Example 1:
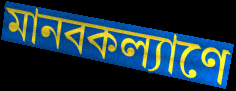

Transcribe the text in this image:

মানবকল্যাণে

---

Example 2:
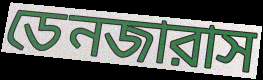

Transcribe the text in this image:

ডেনজারাস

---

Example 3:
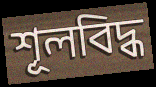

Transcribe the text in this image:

শূলবিদ্ধ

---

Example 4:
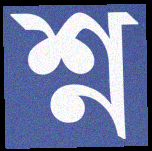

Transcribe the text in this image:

শ্ন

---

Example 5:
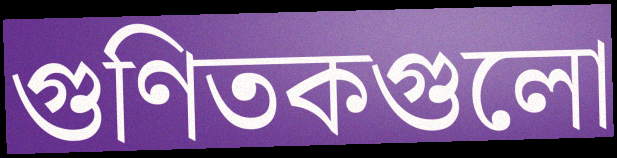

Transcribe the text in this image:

গুণিতকগুলো